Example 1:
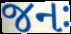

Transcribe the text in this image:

જનઃ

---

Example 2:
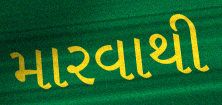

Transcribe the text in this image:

મારવાથી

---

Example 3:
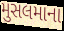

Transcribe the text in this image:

મુસલમાના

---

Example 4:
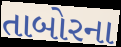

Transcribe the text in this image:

તાબોરના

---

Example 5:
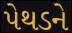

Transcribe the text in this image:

પેથડને